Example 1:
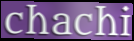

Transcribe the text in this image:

chachi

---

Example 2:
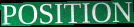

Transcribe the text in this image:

POSITION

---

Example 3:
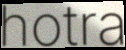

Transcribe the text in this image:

hotra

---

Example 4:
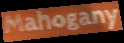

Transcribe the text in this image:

Mahogany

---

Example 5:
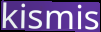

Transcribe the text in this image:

kismis